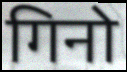
गिनो